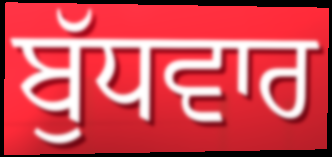
ਬੁੱਧਵਾਰ